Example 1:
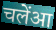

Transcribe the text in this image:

चलेंआ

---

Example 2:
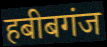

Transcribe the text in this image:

हबीबगंज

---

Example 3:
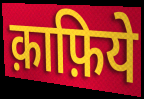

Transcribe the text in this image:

क़ाफ़िये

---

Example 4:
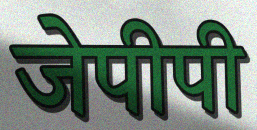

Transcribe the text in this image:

जेपीपी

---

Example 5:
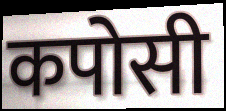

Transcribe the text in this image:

कपोसी